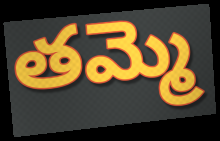
తమ్మె